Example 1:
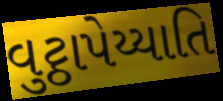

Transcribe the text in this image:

વુટ્ઠાપેય્યાતિ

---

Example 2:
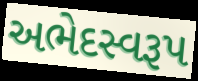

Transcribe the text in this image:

અભેદસ્વરૂપ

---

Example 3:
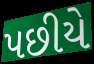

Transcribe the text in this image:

પછીયે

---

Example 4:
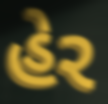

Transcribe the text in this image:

હેર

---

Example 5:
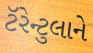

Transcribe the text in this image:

ટૅરેન્ટુલાને